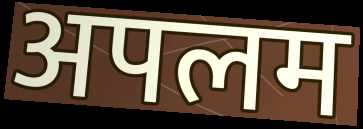
अपलम